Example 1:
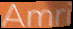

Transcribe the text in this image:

Amri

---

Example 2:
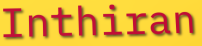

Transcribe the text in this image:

Inthiran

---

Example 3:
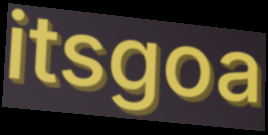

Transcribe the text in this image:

itsgoa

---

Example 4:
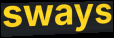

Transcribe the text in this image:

sways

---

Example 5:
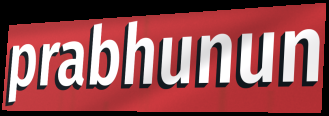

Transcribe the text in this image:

prabhunun